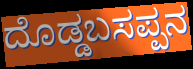
ದೊಡ್ಡಬಸಪ್ಪನ